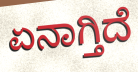
ಏನಾಗ್ತಿದೆ